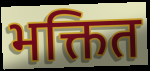
भक्तित